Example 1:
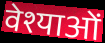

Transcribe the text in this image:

वेश्याओं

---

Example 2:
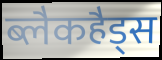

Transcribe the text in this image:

ब्लैकहैड्स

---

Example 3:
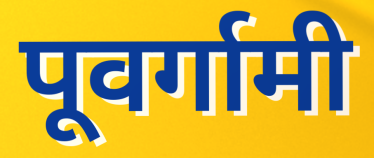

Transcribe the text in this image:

पूवर्गामी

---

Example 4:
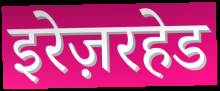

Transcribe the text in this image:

इरेज़रहेड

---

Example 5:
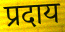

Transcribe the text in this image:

प्रदाय